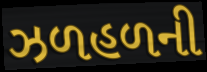
ઝળહળની